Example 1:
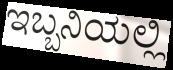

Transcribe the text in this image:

ಇಬ್ಬನಿಯಲ್ಲಿ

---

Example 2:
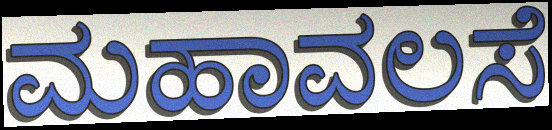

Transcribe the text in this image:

ಮಹಾವಲಸೆ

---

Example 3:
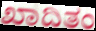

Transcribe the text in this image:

ಖಾದಿತಂ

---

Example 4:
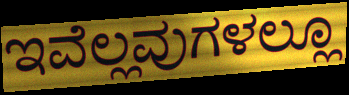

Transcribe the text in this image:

ಇವೆಲ್ಲವುಗಳಲ್ಲೂ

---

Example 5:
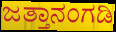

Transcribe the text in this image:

ಜತ್ತಾನಂಗಡಿ